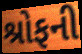
શ્રોફની